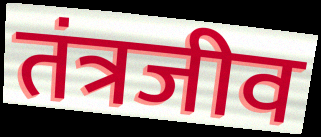
तंत्रजीव